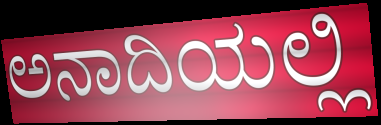
ಅನಾದಿಯಲ್ಲಿ